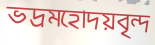
ভদ্রমহোদয়বৃন্দ